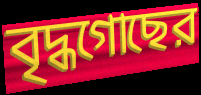
বৃদ্ধগোছের